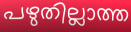
പഴുതില്ലാത്ത